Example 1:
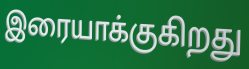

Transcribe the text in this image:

இரையாக்குகிறது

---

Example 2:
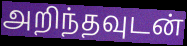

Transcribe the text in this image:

அறிந்தவுடன்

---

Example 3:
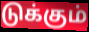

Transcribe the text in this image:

டுக்கும்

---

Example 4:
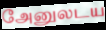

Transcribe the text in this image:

அேனுலடய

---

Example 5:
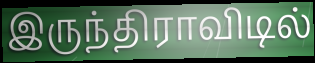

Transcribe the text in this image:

இருந்திராவிடில்